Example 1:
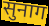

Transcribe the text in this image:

सुनाग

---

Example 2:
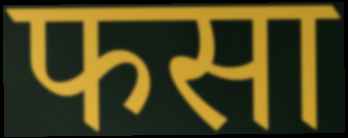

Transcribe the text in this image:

फसा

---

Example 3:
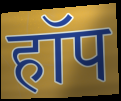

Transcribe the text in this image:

हॉप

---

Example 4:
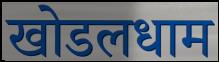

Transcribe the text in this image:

खोडलधाम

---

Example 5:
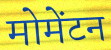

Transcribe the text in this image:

मोमेंटन